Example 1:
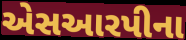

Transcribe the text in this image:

એસઆરપીના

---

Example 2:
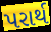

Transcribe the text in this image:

પરાર્થ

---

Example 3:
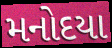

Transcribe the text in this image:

મનોદયા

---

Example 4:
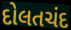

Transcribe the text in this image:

દોલતચંદ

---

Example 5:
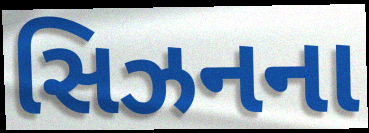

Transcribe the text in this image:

સિઝનના